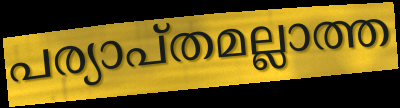
പര്യാപ്തമല്ലാത്ത